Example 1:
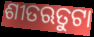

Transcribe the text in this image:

ଶୀତଋତୁଟା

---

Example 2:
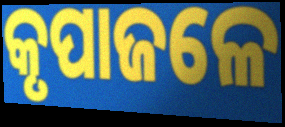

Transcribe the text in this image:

କୃପାଜଳେ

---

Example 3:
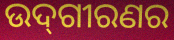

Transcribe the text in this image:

ଉଦ୍‌ଗୀରଣର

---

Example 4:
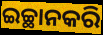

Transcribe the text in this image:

ଇଚ୍ଛାନକରି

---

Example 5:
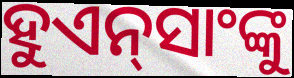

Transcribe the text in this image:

ହୁଏନ୍‌ସାଂଙ୍କୁ